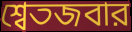
শ্বেতজবার